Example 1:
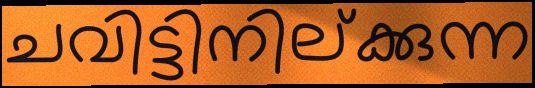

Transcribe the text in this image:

ചവിട്ടിനില്ക്കുന്ന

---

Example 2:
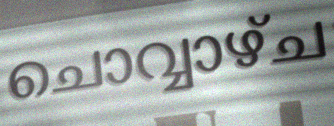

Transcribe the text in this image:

ചൊവ്വാഴ്‌ച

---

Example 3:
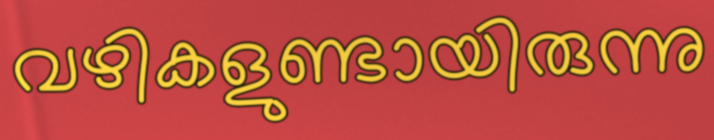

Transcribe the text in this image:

വഴികളുണ്ടായിരുന്നു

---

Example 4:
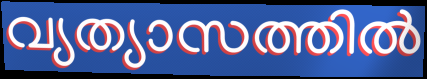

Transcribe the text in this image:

വ്യത്യാസത്തിൽ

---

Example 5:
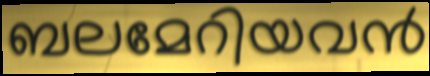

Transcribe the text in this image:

ബലമേറിയവൻ